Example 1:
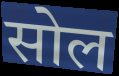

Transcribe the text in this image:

सोल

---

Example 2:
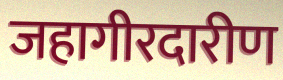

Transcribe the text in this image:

जहागीरदारीण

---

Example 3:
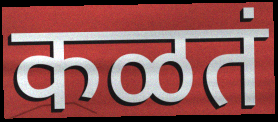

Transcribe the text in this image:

कळतं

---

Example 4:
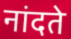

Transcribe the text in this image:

नांदते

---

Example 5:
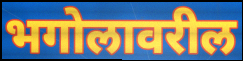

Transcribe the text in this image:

भगोलावरील